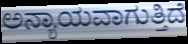
ಅನ್ಯಾಯವಾಗುತ್ತಿದೆ